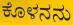
ಕೊಳನನು